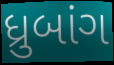
ધ્રુબાંગ